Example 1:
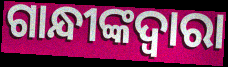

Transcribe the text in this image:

ଗାନ୍ଧୀଙ୍କଦ୍ଵାରା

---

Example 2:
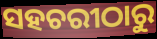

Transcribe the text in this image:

ସହଚରୀଠାରୁ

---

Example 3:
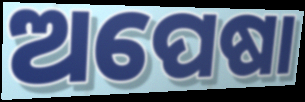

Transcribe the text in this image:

ଅପେଷା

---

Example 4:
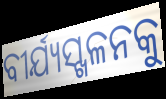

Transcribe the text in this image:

ବୀର୍ଯ୍ୟସ୍ଖଳନକୁ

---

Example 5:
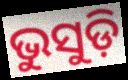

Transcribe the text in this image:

ଭୁସୁଡ଼ି